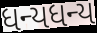
ધન્યધન્ય